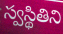
స్వస్థితిని